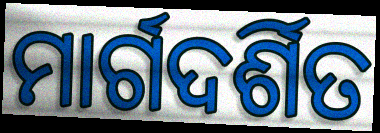
ମାର୍ଗଦର୍ଶିତ